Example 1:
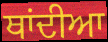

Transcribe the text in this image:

ਥਾਂਦੀਆ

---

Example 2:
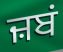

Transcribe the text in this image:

ਜ਼ਬਂ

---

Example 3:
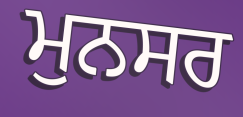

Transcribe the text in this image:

ਮੁਨਸਰ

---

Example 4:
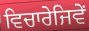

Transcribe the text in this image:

ਵਿਚਾਰੇਜਿਵੇਂ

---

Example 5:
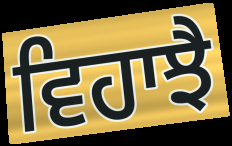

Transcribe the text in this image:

ਵਿਹਾਝੈ